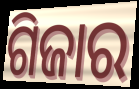
ଗିଜାର